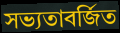
সভ্যতাবর্জিত